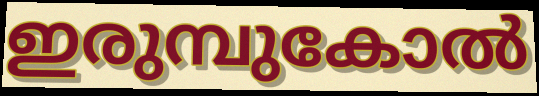
ഇരുമ്പുകോൽ